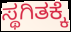
ಸ್ಥಗಿತಕ್ಕೆ